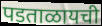
पडताळायची